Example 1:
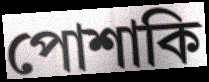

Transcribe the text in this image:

পোশাকি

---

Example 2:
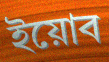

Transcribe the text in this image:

ইয়োব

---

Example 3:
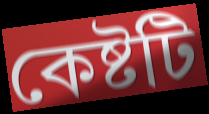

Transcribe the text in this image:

কেষ্টটি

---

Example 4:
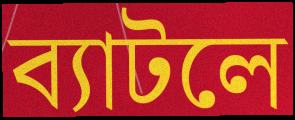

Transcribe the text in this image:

ব্যাটলে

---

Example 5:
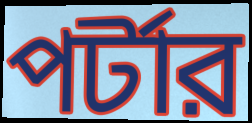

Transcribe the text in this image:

পর্টার